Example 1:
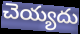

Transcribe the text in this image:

చెయ్యదు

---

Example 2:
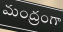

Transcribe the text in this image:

మంద్రంగా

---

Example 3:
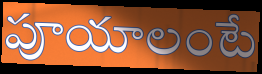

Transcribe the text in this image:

పూయాలంటే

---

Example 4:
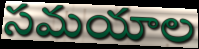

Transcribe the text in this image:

సమయాల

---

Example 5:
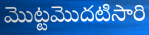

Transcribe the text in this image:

మొట్టమొదటిసారి